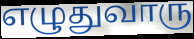
எழுதுவாரு